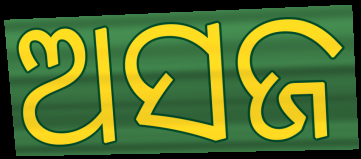
ଅସଜ